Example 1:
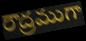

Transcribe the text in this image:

రౌద్రముగా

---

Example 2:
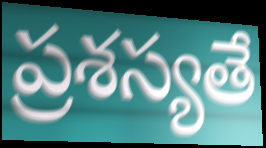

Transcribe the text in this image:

ప్రశస్యతే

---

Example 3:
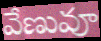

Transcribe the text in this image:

వేణువూ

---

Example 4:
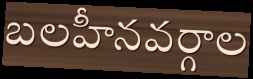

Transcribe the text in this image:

బలహీనవర్గాల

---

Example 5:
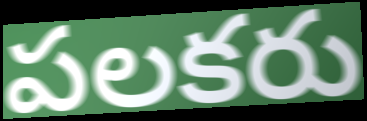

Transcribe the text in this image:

పలకరు